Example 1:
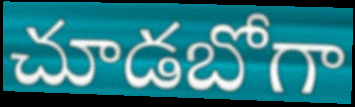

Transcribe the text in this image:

చూడబోగా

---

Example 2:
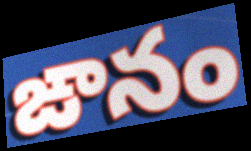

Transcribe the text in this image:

ఙానం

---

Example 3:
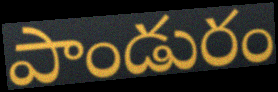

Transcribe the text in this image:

పాండురం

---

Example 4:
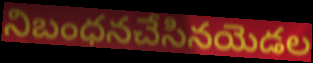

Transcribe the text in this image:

నిబంధనచేసినయెడల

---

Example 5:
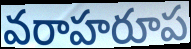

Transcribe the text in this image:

వరాహరూప